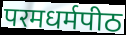
परमधर्मपीठ